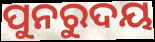
ପୁନରୁଦୟ